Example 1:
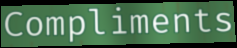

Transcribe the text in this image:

Compliments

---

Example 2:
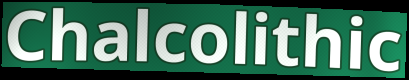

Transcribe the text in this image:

Chalcolithic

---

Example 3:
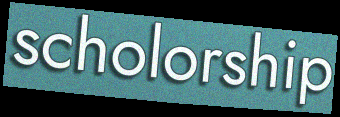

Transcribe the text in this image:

scholorship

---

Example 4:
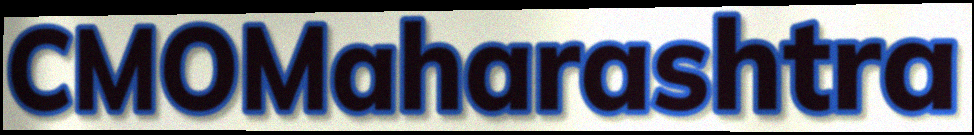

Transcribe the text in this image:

CMOMaharashtra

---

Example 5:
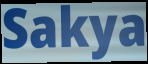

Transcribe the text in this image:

Sakya